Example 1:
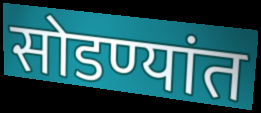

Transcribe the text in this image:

सोडण्यांत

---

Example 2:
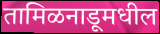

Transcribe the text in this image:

तामिळनाडूमधील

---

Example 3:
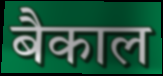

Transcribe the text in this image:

बैकाल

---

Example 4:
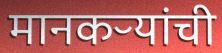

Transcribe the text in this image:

मानकऱ्यांची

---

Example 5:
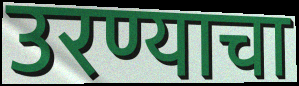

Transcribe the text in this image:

उरण्याचा